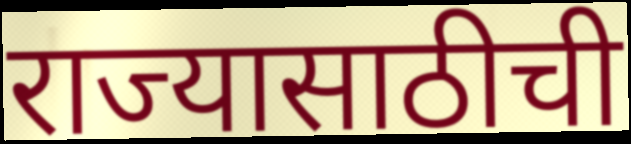
राज्यासाठीची